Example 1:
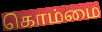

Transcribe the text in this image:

கொம்மை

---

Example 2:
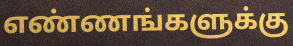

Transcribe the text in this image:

எண்ணங்களுக்கு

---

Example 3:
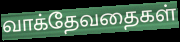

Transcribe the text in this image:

வாக்தேவதைகள்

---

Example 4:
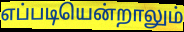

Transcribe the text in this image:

எப்படியென்றாலும்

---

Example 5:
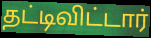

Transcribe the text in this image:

தட்டிவிட்டார்